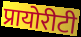
प्रायोरीटी